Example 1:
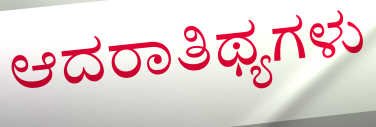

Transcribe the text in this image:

ಆದರಾತಿಥ್ಯಗಳು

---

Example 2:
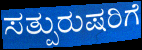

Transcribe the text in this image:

ಸತ್ಪುರುಷರಿಗೆ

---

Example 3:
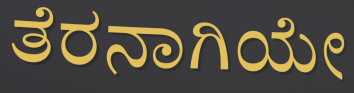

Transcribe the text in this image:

ತೆರನಾಗಿಯೇ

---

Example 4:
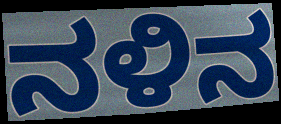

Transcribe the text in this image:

ನಳಿನ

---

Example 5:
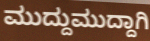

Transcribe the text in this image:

ಮುದ್ದುಮುದ್ದಾಗಿ